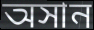
অসান